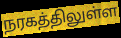
நரகத்திலுள்ள